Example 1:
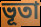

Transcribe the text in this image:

ভূতা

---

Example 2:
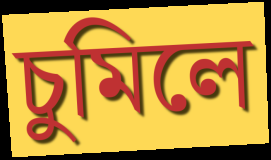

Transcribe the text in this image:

চুমিলে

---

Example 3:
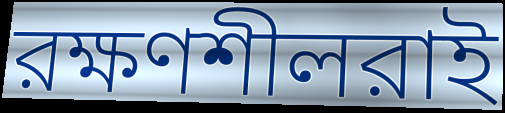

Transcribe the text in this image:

রক্ষণশীলরাই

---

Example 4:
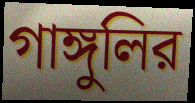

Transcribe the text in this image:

গাঙ্গুলির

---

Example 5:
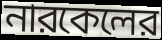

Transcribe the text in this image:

নারকেলের